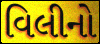
વિલીનો